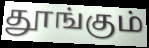
தூங்கும்